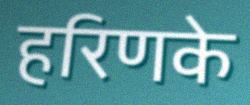
हरिणके